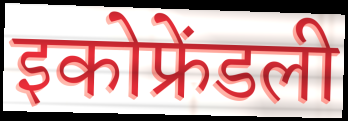
इकोफ्रेंडली